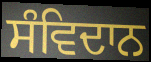
ਸੰਵਿਦਾਨ